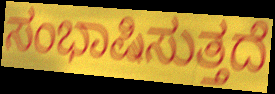
ಸಂಭಾಷಿಸುತ್ತದೆ